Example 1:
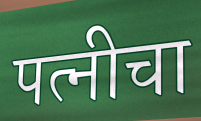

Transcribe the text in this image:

पत्नीचा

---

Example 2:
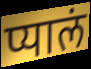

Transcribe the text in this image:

प्यालं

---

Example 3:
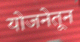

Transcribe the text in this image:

योजनेतून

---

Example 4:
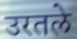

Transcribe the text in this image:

उरतले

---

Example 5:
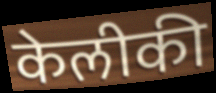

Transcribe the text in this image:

केलीकी